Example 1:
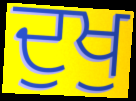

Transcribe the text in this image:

ਦੁਖੁ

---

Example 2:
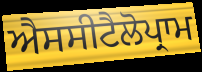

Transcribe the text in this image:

ਐਸਸੀਟੈਲੋਪ੍ਰਾਮ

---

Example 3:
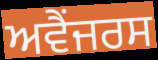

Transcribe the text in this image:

ਅਵੈਂਜਰਸ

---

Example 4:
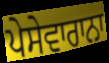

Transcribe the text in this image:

ਪੇਸੇਵਾਰਾਨਾ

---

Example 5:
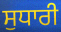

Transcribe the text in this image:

ਸੁਧਾਰੀ